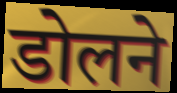
डोलने